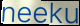
neeku